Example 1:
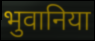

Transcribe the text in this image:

भुवानिया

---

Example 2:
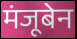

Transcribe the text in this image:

मंजूबेन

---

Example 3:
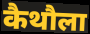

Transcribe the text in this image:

कैथौला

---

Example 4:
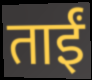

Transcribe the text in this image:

ताईं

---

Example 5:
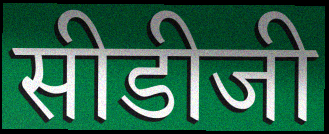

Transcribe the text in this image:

सीडीजी